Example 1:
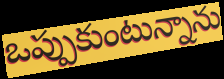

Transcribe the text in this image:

ఒప్పుకుంటున్నాను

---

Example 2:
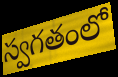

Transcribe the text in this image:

స్వగతంలో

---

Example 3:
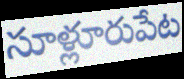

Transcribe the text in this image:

సూళ్లూరుపేట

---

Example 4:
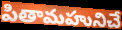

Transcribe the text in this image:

పితామహునిచే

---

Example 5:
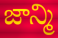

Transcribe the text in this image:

జాన్మి